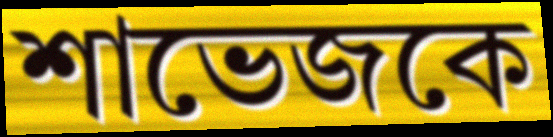
শাভেজকে